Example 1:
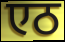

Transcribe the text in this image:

एठ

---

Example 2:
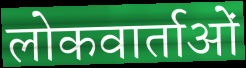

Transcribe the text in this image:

लोकवार्ताओं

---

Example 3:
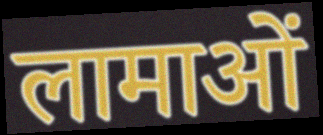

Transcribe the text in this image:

लामाओं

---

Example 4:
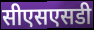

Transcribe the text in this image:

सीएसएसडी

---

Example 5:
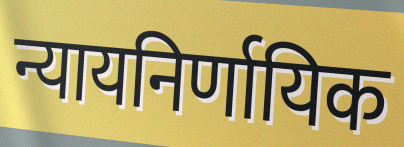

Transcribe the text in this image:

न्यायनिर्णायिक